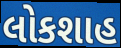
લોકશાહ